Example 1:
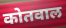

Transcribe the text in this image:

कोतवाल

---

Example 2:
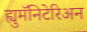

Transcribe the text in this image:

ह्युमॅनिटेरिअन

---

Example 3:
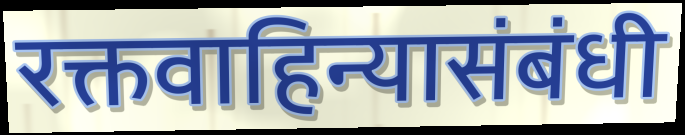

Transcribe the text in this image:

रक्तवाहिन्यासंबंधी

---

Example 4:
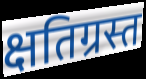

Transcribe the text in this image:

क्षतिग्रस्त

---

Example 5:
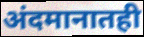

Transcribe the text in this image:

अंदमानातही